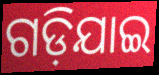
ଗଡ଼ିଯାଇ